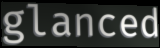
glanced